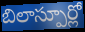
బిలాస్పూర్లో